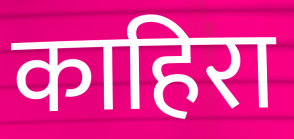
काहिरा